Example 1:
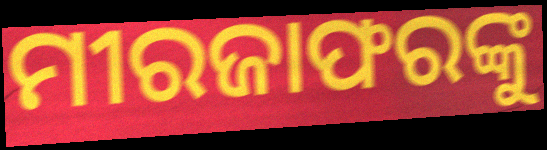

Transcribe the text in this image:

ମୀରଜାଫରଙ୍କୁ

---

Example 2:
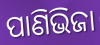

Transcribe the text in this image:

ପାଣିଭିଜା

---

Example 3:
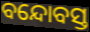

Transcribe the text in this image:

ବନ୍ଦୋବସ୍ତ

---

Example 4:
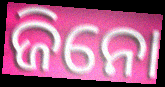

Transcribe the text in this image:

ଜିନୋ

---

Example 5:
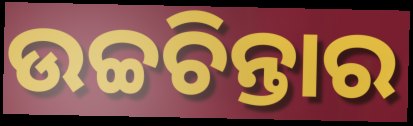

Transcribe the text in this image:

ଉଚ୍ଚଚିନ୍ତାର